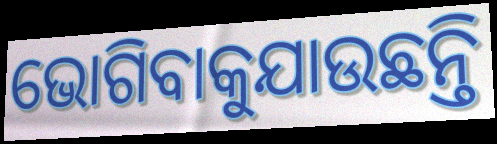
ଭୋଗିବାକୁଯାଉଛନ୍ତି